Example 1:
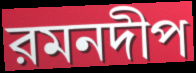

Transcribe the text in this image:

রমনদীপ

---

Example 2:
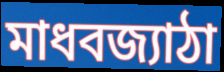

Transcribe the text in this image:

মাধবজ্যাঠা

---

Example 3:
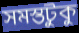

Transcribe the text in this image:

সমস্তটুকু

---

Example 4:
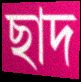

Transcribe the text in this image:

ছাদ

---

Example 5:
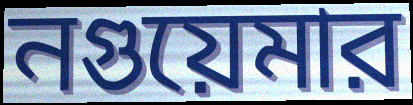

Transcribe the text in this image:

নগুয়েমার